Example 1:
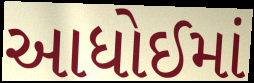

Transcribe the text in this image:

આધોઈમાં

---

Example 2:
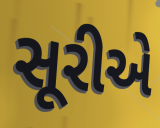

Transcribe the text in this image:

સૂરીએ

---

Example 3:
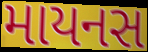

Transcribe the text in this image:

માયનસ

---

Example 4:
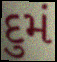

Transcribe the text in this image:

દુમં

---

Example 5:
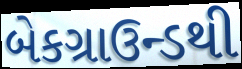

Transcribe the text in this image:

બેકગ્રાઉન્ડથી